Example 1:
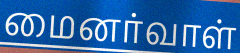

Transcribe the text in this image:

மைனர்வாள்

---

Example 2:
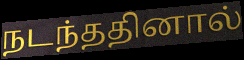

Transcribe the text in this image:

நடந்ததினால்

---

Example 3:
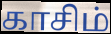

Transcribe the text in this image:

காசிம்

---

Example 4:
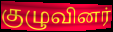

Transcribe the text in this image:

குழுவினர்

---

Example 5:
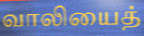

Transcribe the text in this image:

வாலியைத்